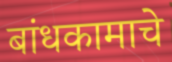
बांधकामाचे